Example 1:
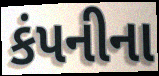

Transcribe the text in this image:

કંપનીના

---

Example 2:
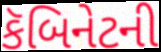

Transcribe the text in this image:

કૅબિનેટની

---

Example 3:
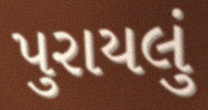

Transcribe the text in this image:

પુરાયલું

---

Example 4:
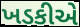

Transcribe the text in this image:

ખડકીએ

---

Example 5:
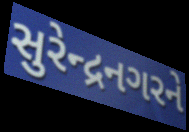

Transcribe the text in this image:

સુરેન્દ્રનગરને